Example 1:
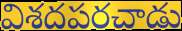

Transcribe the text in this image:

విశదపరచాడు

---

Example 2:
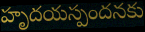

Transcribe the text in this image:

హృదయస్పందనకు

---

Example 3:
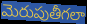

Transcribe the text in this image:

మెరుపుతీగలా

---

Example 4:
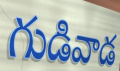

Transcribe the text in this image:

గుడివాడ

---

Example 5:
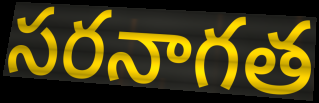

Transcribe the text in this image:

సరనాగత